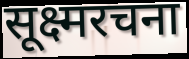
सूक्ष्मरचना